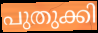
പുതുക്കി